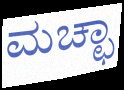
ಮಚ್ಛಾ